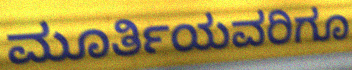
ಮೂರ್ತಿಯವರಿಗೂ